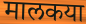
मालकया